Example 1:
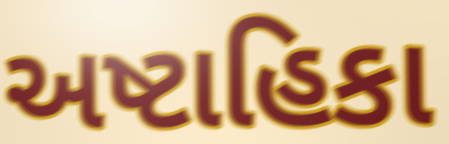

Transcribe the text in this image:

અષ્ટાહિકા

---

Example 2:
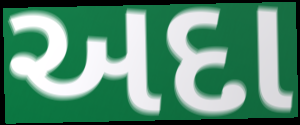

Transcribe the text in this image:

અદા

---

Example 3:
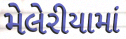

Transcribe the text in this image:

મેલેરીયામાં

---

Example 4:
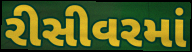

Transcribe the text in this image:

રીસીવરમાં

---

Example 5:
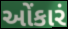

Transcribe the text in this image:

ઓંકારં